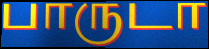
பாருடா